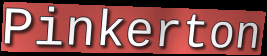
Pinkerton